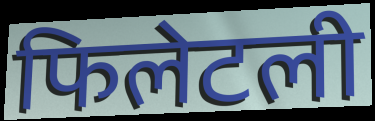
फिलेटली